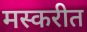
मस्करीत